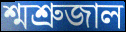
শ্মশ্রুজাল